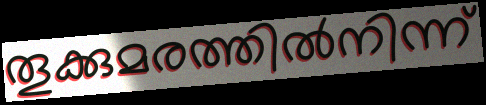
തൂക്കുമരത്തിൽനിന്ന്